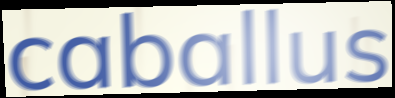
caballus